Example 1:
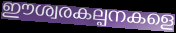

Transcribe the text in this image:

ഈശ്വരകല്പനകളെ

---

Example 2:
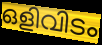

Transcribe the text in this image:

ഒളിവിടം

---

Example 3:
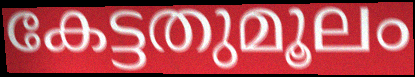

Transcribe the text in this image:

കേട്ടതുമൂലം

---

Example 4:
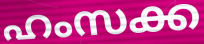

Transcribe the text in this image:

ഹംസക്ക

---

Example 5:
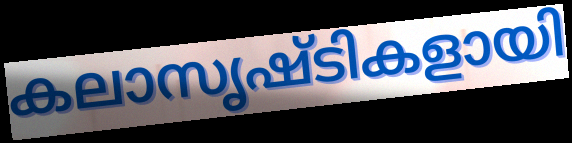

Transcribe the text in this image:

കലാസൃഷ്ടികളായി